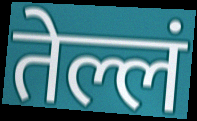
तेल्लं